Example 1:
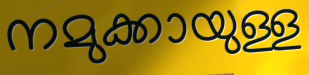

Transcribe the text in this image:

നമുക്കായുള്ള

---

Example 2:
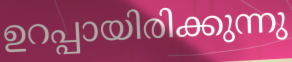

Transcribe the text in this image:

ഉറപ്പായിരിക്കുന്നു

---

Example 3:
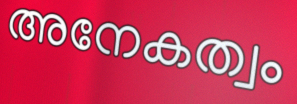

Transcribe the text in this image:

അനേകത്വം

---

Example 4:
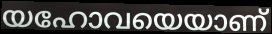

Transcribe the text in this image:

യഹോവയെയാണ്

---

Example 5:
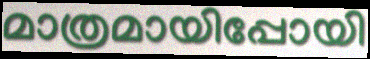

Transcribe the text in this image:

മാത്രമായിപ്പോയി